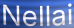
Nellai